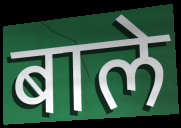
बाले